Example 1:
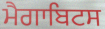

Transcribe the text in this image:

ਮੈਗਾਬਿਟਸ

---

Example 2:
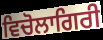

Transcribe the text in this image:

ਵਿਚੋਲਾਗਿਰੀ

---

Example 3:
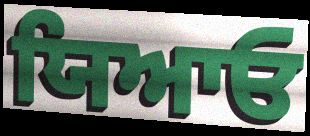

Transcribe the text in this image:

ਯਿਆਓ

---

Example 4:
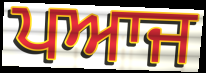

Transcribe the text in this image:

ਪਆਜ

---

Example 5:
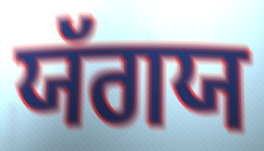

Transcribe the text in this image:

ਯੱਗਯ